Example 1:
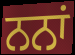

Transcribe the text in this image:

ਨਨਾਂ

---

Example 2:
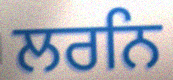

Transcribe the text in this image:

ਲਰਨਿ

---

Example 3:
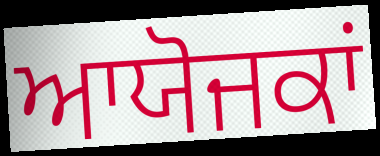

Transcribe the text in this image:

ਆਯੋਜਕਾਂ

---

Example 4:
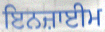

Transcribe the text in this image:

ਇਨਜ਼ਾਈਮ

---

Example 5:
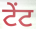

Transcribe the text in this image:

ਟੇਂਟ